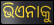
ଭିଏନାକୁ